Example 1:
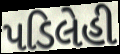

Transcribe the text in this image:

પડિલેહી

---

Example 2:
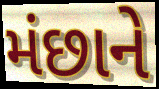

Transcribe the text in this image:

મંછાને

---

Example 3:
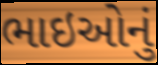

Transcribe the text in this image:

ભાઇઓનું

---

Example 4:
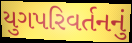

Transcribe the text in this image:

યુગપરિવર્તનનું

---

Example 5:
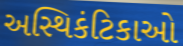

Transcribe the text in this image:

અસ્થિકંટિકાઓ